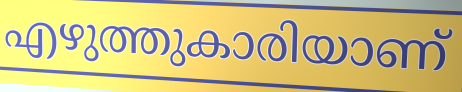
എഴുത്തുകാരിയാണ്